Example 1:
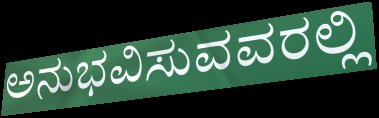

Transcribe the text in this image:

ಅನುಭವಿಸುವವರಲ್ಲಿ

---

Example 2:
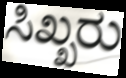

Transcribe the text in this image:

ಸಿಖ್ಖರು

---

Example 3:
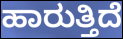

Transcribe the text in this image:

ಹಾರುತ್ತಿದೆ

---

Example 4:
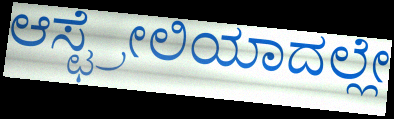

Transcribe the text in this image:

ಆಸ್ಟ್ರೇಲಿಯಾದಲ್ಲೇ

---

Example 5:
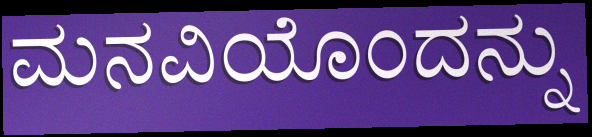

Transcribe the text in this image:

ಮನವಿಯೊಂದನ್ನು